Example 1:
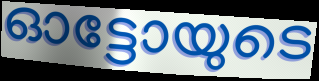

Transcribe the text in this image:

ഓട്ടോയുടെ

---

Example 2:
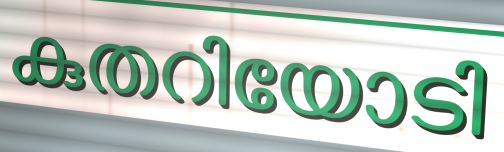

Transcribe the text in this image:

കുതറിയോടി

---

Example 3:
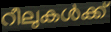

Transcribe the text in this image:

റീലുകൾക്ക്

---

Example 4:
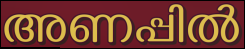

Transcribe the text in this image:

അണപ്പിൽ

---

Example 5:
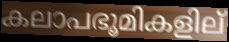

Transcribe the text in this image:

കലാപഭൂമികളില്